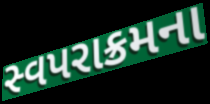
સ્વપરાક્રમના